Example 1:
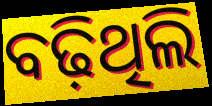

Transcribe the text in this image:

ବଢ଼ିଥିଲି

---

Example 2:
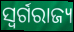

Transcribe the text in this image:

ସ୍ୱର୍ଗରାଜ୍ୟ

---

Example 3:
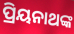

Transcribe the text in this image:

ପ୍ରିୟନାଥଙ୍କ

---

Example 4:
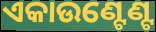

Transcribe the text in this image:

ଏକାଉଣ୍ଟେଣ୍ଟ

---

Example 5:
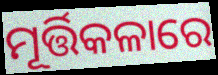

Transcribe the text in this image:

ମୂର୍ତ୍ତିକଳାରେ